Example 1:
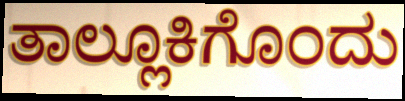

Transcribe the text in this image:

ತಾಲ್ಲೂಕಿಗೊಂದು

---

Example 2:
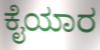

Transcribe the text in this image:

ಕೈಯಾರ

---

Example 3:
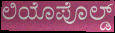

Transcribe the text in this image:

ಲಿಯೊಪೊಲ್ಡ್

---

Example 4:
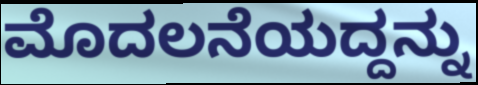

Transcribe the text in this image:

ಮೊದಲನೆಯದ್ದನ್ನು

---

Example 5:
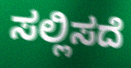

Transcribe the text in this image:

ಸಲ್ಲಿಸದೆ